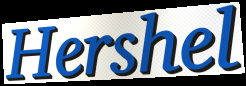
Hershel